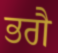
ਭਗੈ